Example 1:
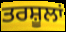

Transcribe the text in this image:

ਤਰਸ਼ੂਲਾਂ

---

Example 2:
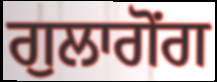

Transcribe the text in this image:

ਗੁਲਾਗੋਂਗ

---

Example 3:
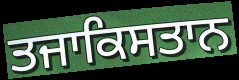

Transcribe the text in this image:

ਤਜਾਕਿਸਤਾਨ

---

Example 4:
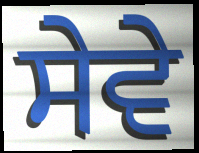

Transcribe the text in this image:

ਸੇਵੇ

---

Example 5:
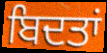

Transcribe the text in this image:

ਬਿਦਤਾਂ